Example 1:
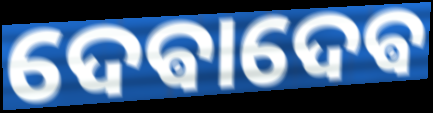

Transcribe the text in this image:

ଦେଵାଦେଵ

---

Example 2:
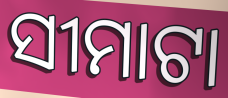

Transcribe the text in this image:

ସୀମାଟା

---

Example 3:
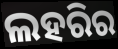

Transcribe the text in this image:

ଲହରିର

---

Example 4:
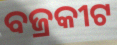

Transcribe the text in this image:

ବଜ୍ରକୀଟ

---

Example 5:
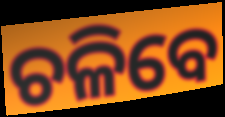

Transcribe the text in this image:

ଚଳିବେ